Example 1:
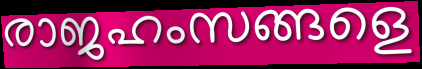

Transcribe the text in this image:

രാജഹംസങ്ങളെ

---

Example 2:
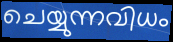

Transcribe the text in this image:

ചെയ്യുന്നവിധം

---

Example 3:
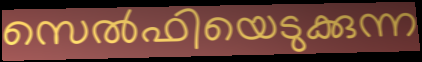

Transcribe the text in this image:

സെൽഫിയെടുക്കുന്ന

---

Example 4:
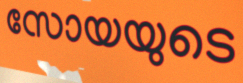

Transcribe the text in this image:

സോയയുടെ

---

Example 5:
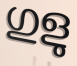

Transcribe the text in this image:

ഗുളു